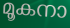
മൂകനാ